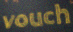
vouch